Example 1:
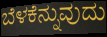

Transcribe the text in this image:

ಬೆಳಕೆನ್ನುವುದು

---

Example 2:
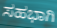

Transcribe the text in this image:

ಸಹಭಾಗಿ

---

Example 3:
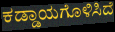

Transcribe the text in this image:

ಕಡ್ಡಾಯಗೊಳಿಸಿದೆ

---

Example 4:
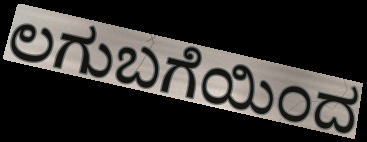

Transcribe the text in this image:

ಲಗುಬಗೆಯಿಂದ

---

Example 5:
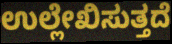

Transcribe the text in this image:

ಉಲ್ಲೇಖಿಸುತ್ತದೆ